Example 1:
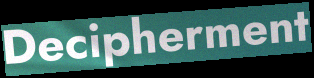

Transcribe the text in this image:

Decipherment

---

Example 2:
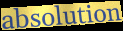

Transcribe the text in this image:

absolution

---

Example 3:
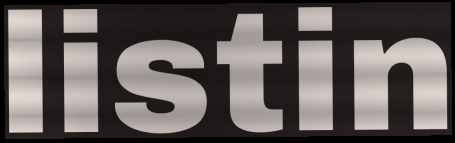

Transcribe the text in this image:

listin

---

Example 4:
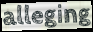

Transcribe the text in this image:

alleging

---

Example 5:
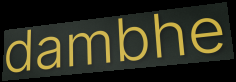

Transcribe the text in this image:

dambhe